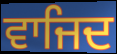
ਵਾਜਿਦ